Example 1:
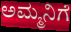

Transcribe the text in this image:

ಅಮ್ಮನಿಗೆ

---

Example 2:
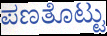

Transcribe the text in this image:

ಪಣತೊಟ್ಟು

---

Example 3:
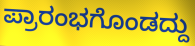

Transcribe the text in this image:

ಪ್ರಾರಂಭಗೊಂಡದ್ದು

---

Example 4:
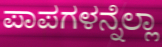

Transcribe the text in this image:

ಪಾಪಗಳನ್ನೆಲ್ಲಾ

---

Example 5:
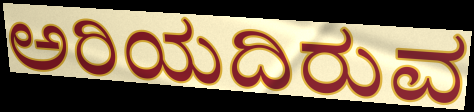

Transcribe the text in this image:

ಅರಿಯದಿರುವ